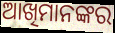
ଆଖିମାନଙ୍କର